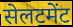
सेलटमेंट